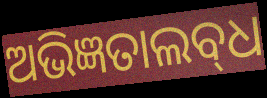
ଅଭିଜ୍ଞତାଲବ୍‌ଧ